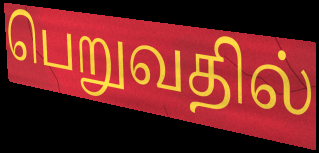
பெறுவதில்